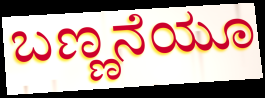
ಬಣ್ಣನೆಯೂ